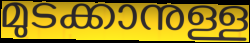
മുടക്കാനുള്ള